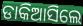
ଡାକିଆସିଲେ